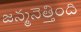
జన్మనెత్తింది